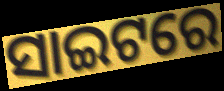
ସାଇଟରେ